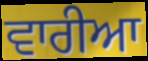
ਵਾਰੀਆ